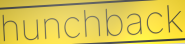
hunchback